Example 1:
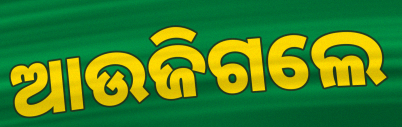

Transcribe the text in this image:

ଆଉଜିଗଲେ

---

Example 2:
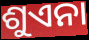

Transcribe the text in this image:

ଶୁଏନା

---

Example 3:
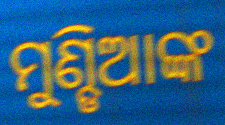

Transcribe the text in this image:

ମୁଣ୍ଡିଆଙ୍କ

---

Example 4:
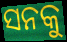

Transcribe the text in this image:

ସନକୁ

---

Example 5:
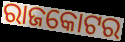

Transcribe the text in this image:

ରାଜକୋଟର